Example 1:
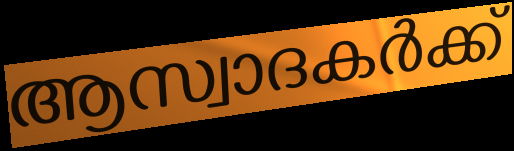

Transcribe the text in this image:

ആസ്വാദകർക്ക്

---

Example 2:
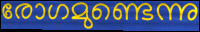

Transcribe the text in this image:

രോഗമുണ്ടെന്നു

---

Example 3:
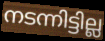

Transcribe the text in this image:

നടന്നിട്ടില്ല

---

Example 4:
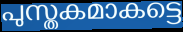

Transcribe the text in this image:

പുസ്തകമാകട്ടെ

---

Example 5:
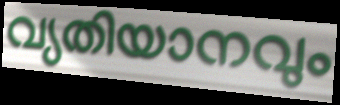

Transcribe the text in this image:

വ്യതിയാനവും